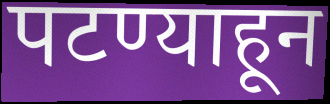
पटण्याहून